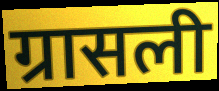
ग्रासली